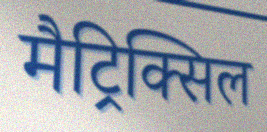
मैट्रिक्सिल